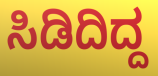
ಸಿಡಿದಿದ್ದ